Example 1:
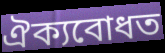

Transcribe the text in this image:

ঐক্যবোধত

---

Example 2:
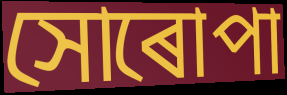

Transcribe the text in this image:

সোৰোপা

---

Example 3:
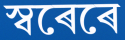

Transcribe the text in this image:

স্বৰেৰে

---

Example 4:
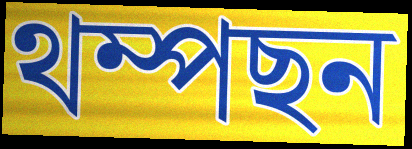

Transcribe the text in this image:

থম্পছন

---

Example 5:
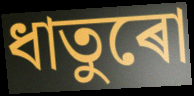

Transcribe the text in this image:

ধাতুৰো